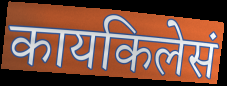
कायकिलेसं